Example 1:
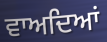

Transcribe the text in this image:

ਵਾਅਦਿਆਂ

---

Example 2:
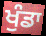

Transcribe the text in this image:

ਖੁੰਡਾ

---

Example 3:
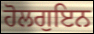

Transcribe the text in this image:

ਹੋਲਗੁਇਨ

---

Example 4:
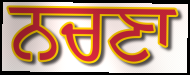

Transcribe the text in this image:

ਨਚਣਾ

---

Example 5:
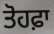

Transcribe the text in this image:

ਤੋਹਫ਼ਾ